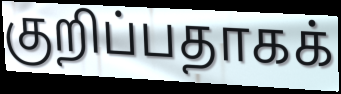
குறிப்பதாகக்